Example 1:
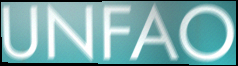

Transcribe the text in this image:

UNFAO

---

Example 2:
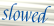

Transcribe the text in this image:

slowed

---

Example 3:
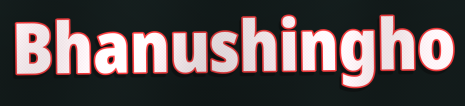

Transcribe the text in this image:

Bhanushingho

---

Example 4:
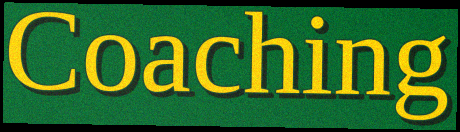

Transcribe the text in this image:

Coaching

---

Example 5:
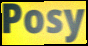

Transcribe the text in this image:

Posy